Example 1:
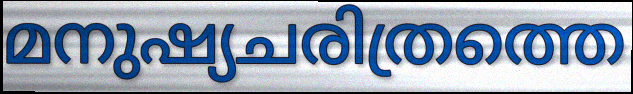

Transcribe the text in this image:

മനുഷ്യചരിത്രത്തെ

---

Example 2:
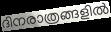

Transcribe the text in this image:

ദിനരാത്രങ്ങളിൽ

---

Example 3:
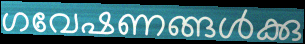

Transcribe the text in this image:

ഗവേഷണങ്ങൾക്കു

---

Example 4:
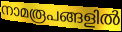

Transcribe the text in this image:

നാമരൂപങ്ങളിൽ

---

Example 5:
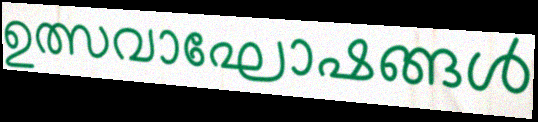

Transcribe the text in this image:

ഉത്സവാഘോഷങ്ങൾ